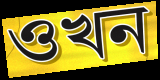
ওখন